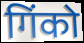
गिंको